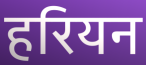
हरियन